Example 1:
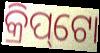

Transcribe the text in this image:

କ୍ରିପ୍‌ଟୋ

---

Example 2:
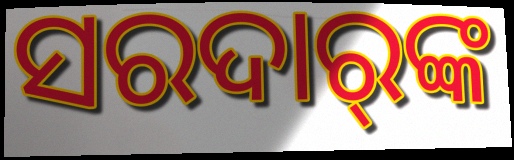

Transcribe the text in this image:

ସରଦାର୍‍ଙ୍କ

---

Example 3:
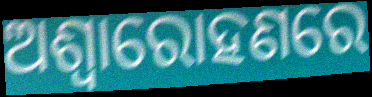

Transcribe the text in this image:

ଅଶ୍ଵାରୋହଣରେ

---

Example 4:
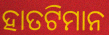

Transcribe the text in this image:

ହାତଟିମାନ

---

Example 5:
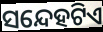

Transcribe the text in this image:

ସନ୍ଦେହଟିଏ